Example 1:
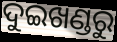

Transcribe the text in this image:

ଦୁଇଖଣ୍ଡରୁ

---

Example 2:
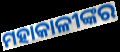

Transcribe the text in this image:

ମହାକାଳୀଙ୍କର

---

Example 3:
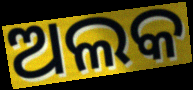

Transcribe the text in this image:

ଅଲକ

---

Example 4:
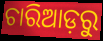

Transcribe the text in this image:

ଚାରିଆଡ଼ରୁ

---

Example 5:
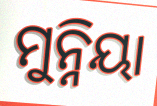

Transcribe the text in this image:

ମୁନ୍ନିୟା